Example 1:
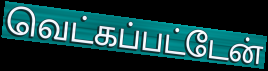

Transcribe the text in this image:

வெட்கப்பட்டேன்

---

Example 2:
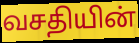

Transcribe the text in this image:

வசதியின்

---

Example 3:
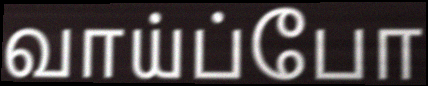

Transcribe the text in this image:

வாய்ப்போ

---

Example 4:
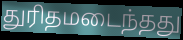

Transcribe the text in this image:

துரிதமடைந்தது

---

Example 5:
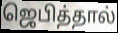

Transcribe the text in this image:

ஜெபித்தால்